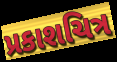
પ્રકાશચિત્ર